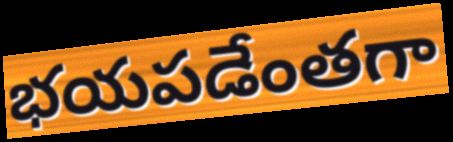
భయపడేంతగా